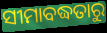
ସୀମାବଦ୍ଧତାରୁ